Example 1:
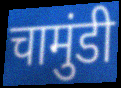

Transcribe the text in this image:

चामुंडी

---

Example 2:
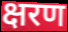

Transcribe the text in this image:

क्षरण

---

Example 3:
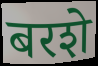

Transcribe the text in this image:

बरशे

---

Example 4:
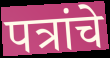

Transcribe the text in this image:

पत्रांचे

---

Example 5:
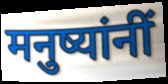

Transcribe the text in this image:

मनुष्यांनीं